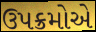
ઉપક્રમોએ